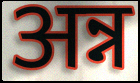
अन्न